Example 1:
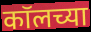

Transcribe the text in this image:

कॉलच्या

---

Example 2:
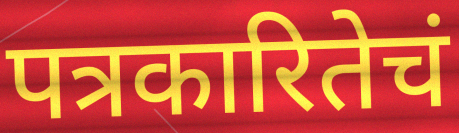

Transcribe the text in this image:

पत्रकारितेचं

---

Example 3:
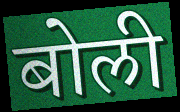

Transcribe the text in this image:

बोली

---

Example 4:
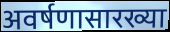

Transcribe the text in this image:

अवर्षणासारख्या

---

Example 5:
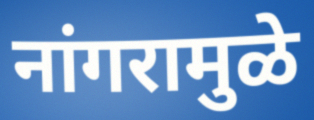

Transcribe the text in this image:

नांगरामुळे